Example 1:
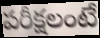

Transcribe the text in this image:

పరీక్షలంటే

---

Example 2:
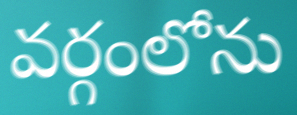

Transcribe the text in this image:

వర్గంలోను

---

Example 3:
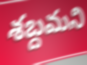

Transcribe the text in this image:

శబ్దమని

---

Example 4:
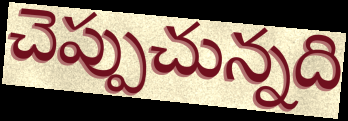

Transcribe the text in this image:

చెప్పుచున్నది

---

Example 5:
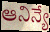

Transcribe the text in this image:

ఆనిన్యే